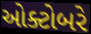
ઓક્ટોબરે